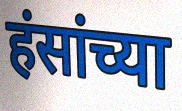
हंसांच्या